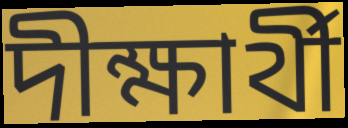
দীক্ষার্থী